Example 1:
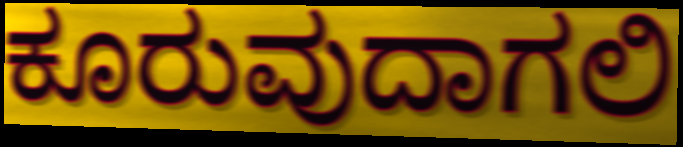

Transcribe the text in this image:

ಕೂರುವುದಾಗಲಿ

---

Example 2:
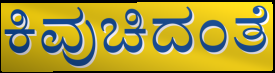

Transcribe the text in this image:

ಕಿವುಚಿದಂತೆ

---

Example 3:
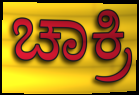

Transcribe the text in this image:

ಚಾಕ್ರಿ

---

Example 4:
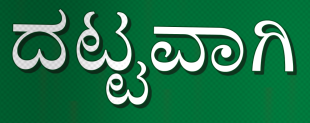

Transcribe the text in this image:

ದಟ್ಟವಾಗಿ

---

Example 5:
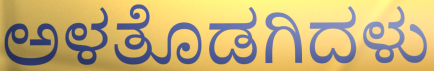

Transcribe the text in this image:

ಅಳತೊಡಗಿದಳು